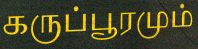
கருப்பூரமும்